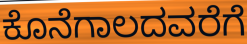
ಕೊನೆಗಾಲದವರೆಗೆ